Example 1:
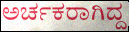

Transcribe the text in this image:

ಅರ್ಚಕರಾಗಿದ್ದ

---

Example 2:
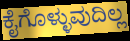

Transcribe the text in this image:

ಕೈಗೊಳ್ಳುವುದಿಲ್ಲ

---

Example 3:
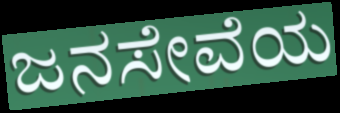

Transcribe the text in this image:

ಜನಸೇವೆಯ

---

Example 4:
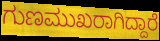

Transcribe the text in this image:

ಗುಣಮುಖರಾಗಿದ್ದಾರೆ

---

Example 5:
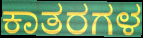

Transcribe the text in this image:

ಕಾತರಗಳ